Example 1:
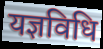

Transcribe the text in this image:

यज्ञविधि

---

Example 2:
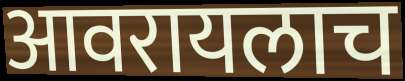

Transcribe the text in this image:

आवरायलाच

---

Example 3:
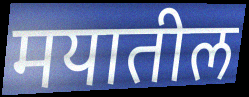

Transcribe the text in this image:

मयातील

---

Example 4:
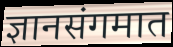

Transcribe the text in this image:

ज्ञानसंगमात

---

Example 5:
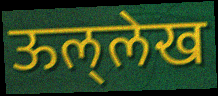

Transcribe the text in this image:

ऊल्लेख